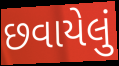
છવાયેલું